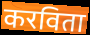
करविता